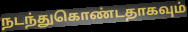
நடந்துகொண்டதாகவும்